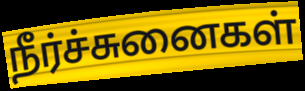
நீர்ச்சுனைகள்